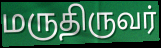
மருதிருவர்